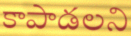
కాపాడలని